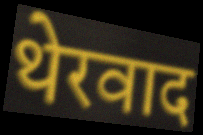
थेरवाद